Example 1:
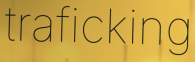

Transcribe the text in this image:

traficking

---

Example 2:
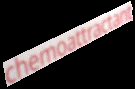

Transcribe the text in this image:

chemoattractant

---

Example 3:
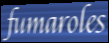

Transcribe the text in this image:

fumaroles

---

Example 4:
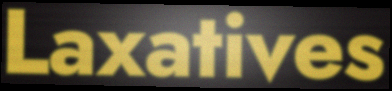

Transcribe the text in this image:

Laxatives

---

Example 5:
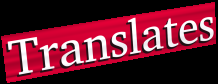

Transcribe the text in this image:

Translates